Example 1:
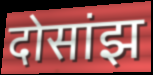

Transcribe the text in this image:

दोसांझ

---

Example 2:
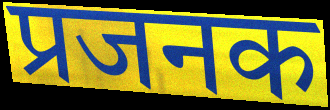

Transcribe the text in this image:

प्रजनक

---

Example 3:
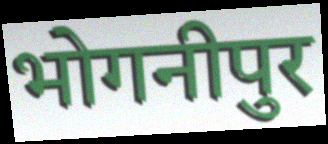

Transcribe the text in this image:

भोगनीपुर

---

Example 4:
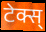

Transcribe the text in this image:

टेक्स्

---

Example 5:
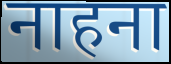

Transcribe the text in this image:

नाहना